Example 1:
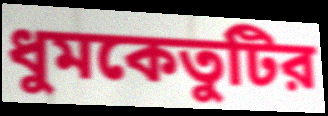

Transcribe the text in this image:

ধুমকেতুটির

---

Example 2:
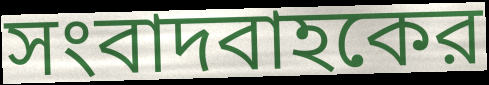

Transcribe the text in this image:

সংবাদবাহকের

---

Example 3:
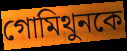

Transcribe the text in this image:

গোমিথুনকে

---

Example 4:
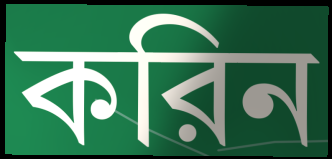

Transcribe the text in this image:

করিন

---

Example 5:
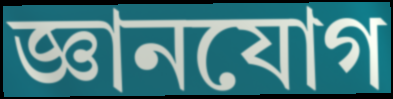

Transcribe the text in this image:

জ্ঞানযোগ